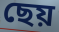
ছেয়